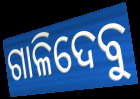
ଗାଳିଦେବୁ